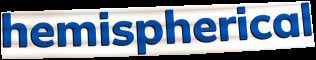
hemispherical